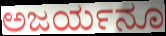
ಅಜರ್ಯನೂ